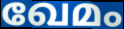
ഖേമം